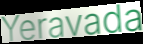
Yeravada